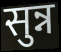
सुन्न